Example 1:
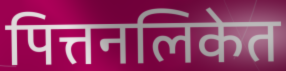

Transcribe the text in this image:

पित्तनलिकेत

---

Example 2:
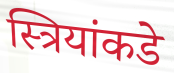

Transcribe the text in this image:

स्त्रियांकडे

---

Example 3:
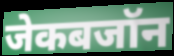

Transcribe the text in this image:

जेकबजॉन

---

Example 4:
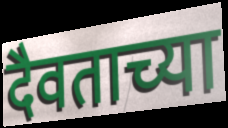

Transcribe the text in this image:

दैवताच्या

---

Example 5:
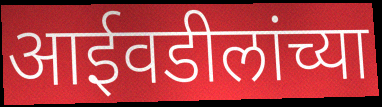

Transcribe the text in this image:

आईवडीलांच्या